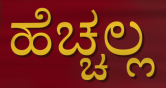
ಹೆಚ್ಚಲ್ಲ